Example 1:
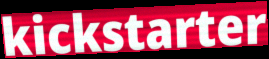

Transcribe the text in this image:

kickstarter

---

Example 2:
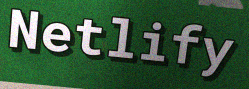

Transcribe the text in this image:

Netlify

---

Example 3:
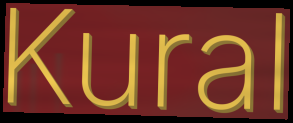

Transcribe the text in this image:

Kural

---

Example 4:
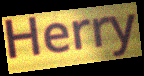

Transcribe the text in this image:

Herry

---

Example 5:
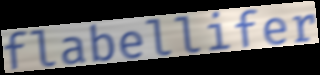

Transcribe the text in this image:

flabellifer